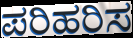
ಪರಿಹರಿಸ